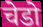
चेडो